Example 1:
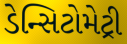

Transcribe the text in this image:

ડેન્સિટોમેટ્રી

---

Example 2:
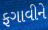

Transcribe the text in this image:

ફગાવીને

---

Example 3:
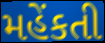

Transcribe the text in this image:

મહેંકતી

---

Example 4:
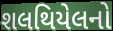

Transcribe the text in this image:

શલથિયેલનો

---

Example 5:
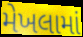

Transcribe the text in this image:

મેખલામાં